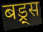
बड्र्स